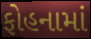
ફોહનામાં